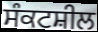
ਸੰਕਟਸ਼ੀਲ